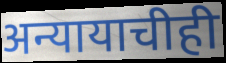
अन्यायाचीही